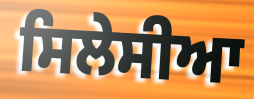
ਸਿਲੇਸੀਆ